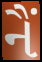
નૈં